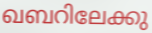
ഖബറിലേക്കു